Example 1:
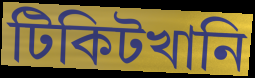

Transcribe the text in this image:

টিকিটখানি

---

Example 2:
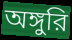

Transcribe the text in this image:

অঙ্গুরি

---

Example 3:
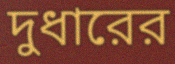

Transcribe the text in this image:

দুধারের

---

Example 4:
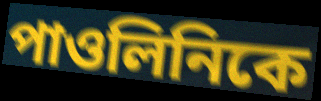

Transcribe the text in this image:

পাওলিনিকে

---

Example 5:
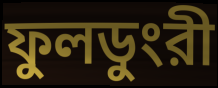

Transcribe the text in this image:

ফুলডুংরী